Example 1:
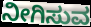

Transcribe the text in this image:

ನೀಗಿಸುವ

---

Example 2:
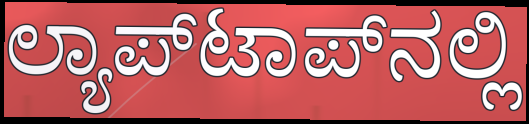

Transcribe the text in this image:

ಲ್ಯಾಪ್‌ಟಾಪ್‌ನಲ್ಲಿ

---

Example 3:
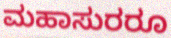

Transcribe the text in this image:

ಮಹಾಸುರರೂ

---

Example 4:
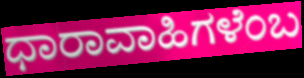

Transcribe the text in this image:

ಧಾರಾವಾಹಿಗಳೆಂಬ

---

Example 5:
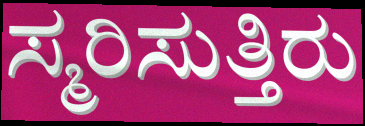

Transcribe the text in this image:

ಸ್ಮರಿಸುತ್ತಿರು